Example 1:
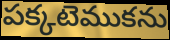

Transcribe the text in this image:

పక్కటెముకను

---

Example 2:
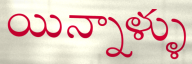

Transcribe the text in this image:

యిన్నాళ్ళు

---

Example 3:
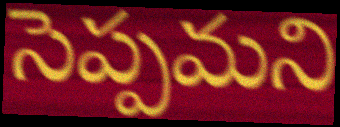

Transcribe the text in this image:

సెప్పమని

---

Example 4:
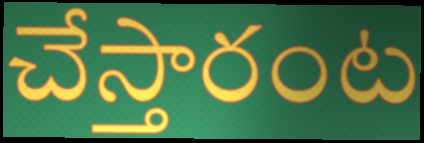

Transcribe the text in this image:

చేస్తారంట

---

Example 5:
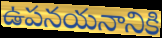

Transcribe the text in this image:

ఉపనయనానికి